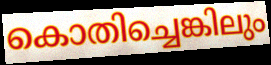
കൊതിച്ചെങ്കിലും